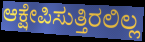
ಆಕ್ಷೇಪಿಸುತ್ತಿರಲಿಲ್ಲ